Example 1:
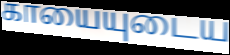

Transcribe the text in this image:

காயையுடைய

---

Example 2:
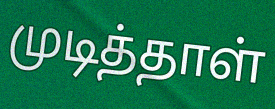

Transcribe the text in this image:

முடித்தாள்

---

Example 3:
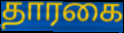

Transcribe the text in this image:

தாரகை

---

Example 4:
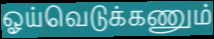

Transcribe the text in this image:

ஓய்வெடுக்கணும்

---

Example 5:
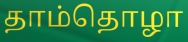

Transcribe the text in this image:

தாம்தொழா